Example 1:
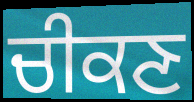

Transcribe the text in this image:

ਚੀਕਣ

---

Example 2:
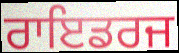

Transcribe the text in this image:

ਰਾਇਡਰਜ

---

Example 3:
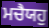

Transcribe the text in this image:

ਮਚੈਯਹੁ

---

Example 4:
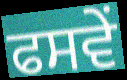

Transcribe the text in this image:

ਫਸਵੇਂ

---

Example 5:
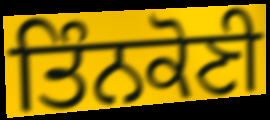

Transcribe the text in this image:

ਤਿੰਨਕੋਣੀ